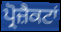
ਪ੍ਰੋਜ਼ੈਕਟਾਂ